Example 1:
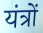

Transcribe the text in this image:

यंत्रों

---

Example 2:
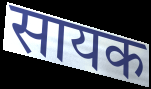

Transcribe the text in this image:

सायक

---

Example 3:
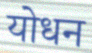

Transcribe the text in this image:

योधन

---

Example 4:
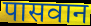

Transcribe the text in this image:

पासवान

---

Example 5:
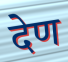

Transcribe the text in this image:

देण